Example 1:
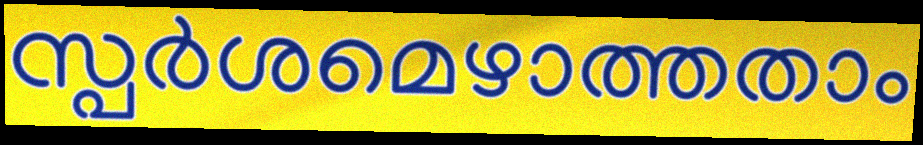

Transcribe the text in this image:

സ്പർശമെഴാത്തതാം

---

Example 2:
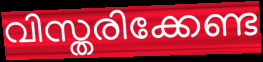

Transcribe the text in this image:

വിസ്തരിക്കേണ്ട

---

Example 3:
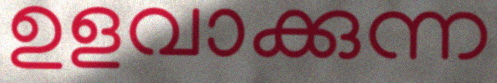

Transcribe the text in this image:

ഉളവാക്കുന്ന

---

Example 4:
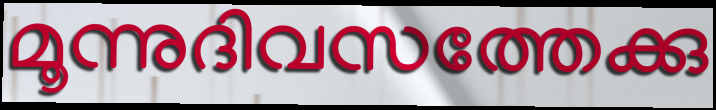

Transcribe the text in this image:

മൂന്നുദിവസത്തേക്കു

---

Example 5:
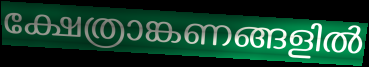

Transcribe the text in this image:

ക്ഷേത്രാങ്കണങ്ങളിൽ